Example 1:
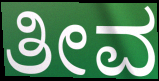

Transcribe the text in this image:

ತೀವ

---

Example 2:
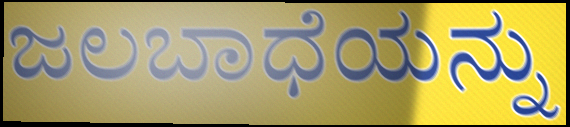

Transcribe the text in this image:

ಜಲಬಾಧೆಯನ್ನು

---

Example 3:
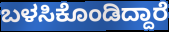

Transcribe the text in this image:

ಬಳಸಿಕೊಂಡಿದ್ದಾರೆ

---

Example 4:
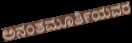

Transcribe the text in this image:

ಅನಂತಮೂರ್ತಿಯವರ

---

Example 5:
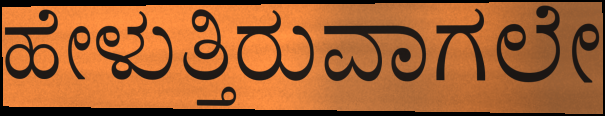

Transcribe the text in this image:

ಹೇಳುತ್ತಿರುವಾಗಲೇ